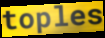
toples